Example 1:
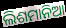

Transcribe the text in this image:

ଲିଶମାନିଆ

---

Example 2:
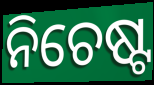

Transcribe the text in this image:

ନିଚେଷ୍ଟ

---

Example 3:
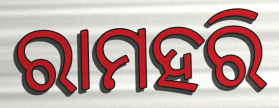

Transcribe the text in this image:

ରାମହରି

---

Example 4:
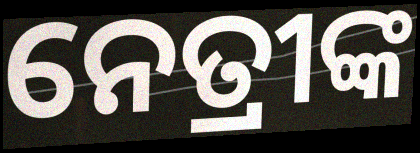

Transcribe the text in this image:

ନେତ୍ରୀଙ୍କ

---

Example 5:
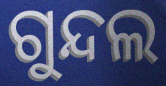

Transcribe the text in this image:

ଗୁନ୍ଦଲ